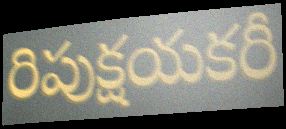
రిపుక్షయకరీ